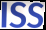
ISS